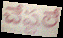
చేష్టలే